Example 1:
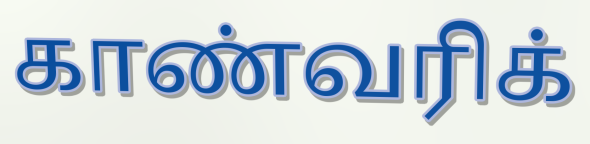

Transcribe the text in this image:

காண்வரிக்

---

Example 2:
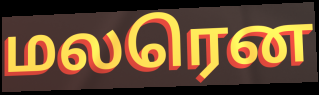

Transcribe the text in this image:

மலரென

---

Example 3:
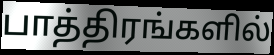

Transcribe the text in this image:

பாத்திரங்களில்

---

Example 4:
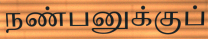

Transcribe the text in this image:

நண்பனுக்குப்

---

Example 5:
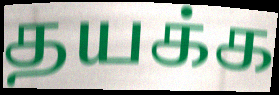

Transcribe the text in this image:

தயக்க